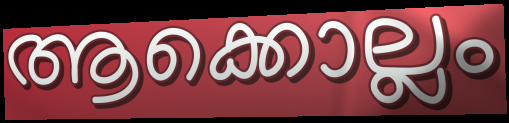
ആക്കൊല്ലം